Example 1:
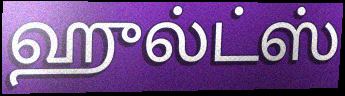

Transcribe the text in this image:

ஹுல்ட்ஸ்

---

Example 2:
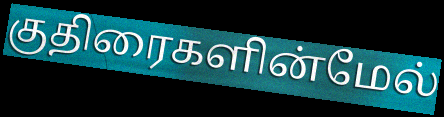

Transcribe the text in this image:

குதிரைகளின்மேல்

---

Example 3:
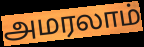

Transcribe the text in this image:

அமரலாம்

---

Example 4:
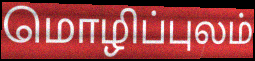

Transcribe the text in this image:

மொழிப்புலம்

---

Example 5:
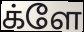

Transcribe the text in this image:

க்ளே